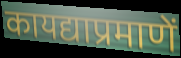
कायद्याप्रमाणें